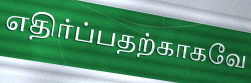
எதிர்ப்பதற்காகவே